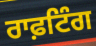
ਰਾਫ਼ਟਿੰਗ